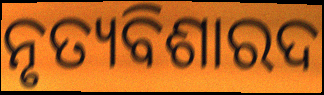
ନୃତ୍ୟବିଶାରଦ